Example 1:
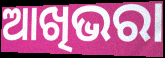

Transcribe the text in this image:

ଆଖିଭରା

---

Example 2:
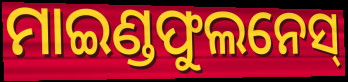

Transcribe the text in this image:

ମାଇଣ୍ଡଫୁଲନେସ୍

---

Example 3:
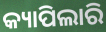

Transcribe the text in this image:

କ୍ୟାପିଲାରି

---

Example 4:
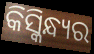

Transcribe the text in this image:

କିସ୍କିନ୍ଧ୍ୟର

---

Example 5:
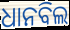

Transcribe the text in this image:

ଧାନବିଲ